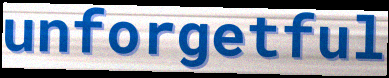
unforgetful